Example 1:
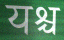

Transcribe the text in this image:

यश्च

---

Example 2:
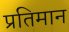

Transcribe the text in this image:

प्रतिमान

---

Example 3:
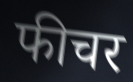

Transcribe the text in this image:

फीचर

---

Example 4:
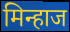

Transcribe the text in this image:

मिन्हाज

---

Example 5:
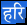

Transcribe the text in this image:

हरि